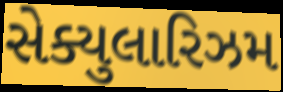
સેક્યુલારિઝમ